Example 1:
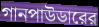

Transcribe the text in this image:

গানপাউডারের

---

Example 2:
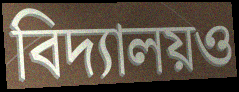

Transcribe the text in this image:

বিদ্যালয়ও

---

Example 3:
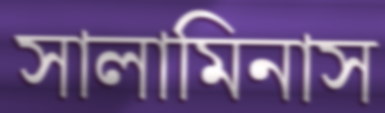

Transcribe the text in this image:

সালামিনাস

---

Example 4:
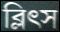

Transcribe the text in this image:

ব্লিৎস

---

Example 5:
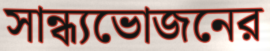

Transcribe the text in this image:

সান্ধ্যভোজনের